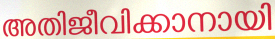
അതിജീവിക്കാനായി